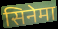
सिनेमा